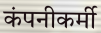
कंपनीकर्मी